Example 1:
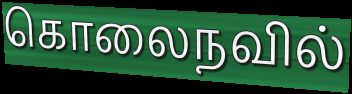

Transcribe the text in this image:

கொலைநவில்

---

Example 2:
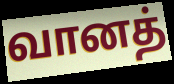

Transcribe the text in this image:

வானத்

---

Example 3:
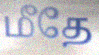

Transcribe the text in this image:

மீதே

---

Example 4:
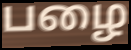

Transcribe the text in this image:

பழை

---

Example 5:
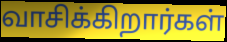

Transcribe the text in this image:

வாசிக்கிறார்கள்